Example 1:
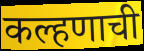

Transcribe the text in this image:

कल्हणाची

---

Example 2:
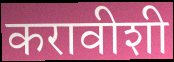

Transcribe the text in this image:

करावीशी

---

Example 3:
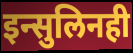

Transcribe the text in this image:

इन्सुलिनही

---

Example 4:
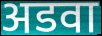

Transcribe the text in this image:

अडवा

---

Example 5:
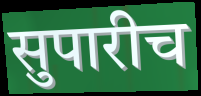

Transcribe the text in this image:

सुपारीच